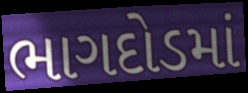
ભાગદોડમાં